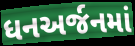
ધનઅર્જનમાં